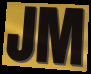
JM